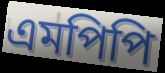
এমপিপি